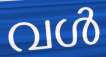
വൾ